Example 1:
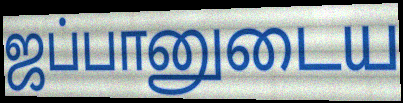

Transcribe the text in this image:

ஜப்பானுடைய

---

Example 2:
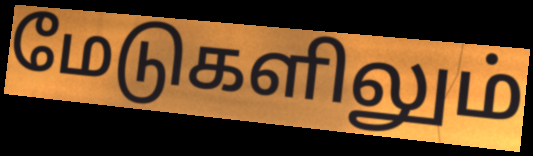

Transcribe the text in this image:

மேடுகளிலும்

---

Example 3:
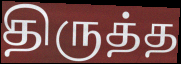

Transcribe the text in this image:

திருத்த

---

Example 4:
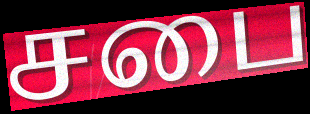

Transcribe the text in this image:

சபை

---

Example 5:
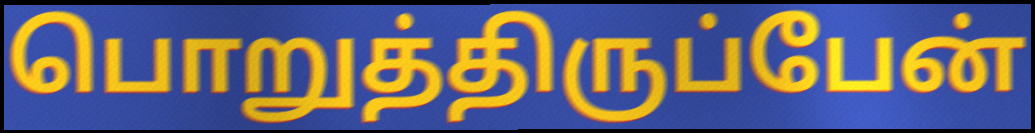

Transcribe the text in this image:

பொறுத்திருப்பேன்